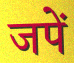
जपें